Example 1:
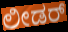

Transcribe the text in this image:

ಲೀಡರ್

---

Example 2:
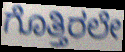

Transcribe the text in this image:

ಗೊತ್ತಿರಲೇ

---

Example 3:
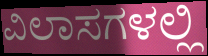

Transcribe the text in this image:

ವಿಲಾಸಗಳಲ್ಲಿ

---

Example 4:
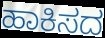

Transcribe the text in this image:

ಹಾಕಿಸದ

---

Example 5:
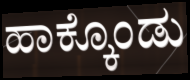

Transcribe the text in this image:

ಹಾಕ್ಕೊಂಡು